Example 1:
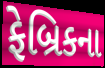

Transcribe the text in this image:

ફેબ્રિકના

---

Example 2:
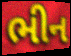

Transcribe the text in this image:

ભીન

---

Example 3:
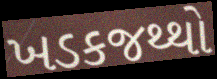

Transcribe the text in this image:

ખડકજથ્થો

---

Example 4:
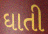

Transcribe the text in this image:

ઘાતી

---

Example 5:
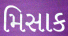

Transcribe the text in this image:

મિસાક